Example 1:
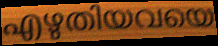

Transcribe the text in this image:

എഴുതിയവയെ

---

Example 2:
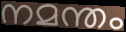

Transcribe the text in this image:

നമന്തം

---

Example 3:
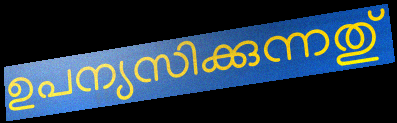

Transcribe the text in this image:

ഉപന്യസിക്കുന്നതു്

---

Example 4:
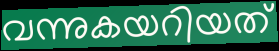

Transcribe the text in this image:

വന്നുകയറിയത്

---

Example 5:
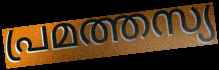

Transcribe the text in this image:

പ്രമത്തസ്യ